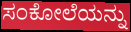
ಸಂಕೋಲೆಯನ್ನು